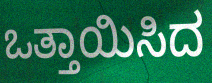
ಒತ್ತಾಯಿಸಿದ